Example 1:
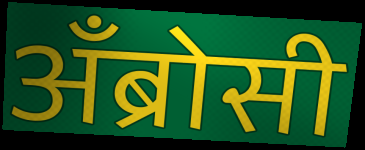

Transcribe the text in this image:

अँब्रोसी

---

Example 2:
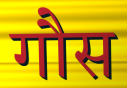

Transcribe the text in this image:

गौस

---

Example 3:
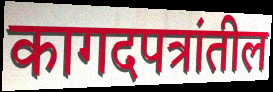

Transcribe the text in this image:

कागदपत्रांतील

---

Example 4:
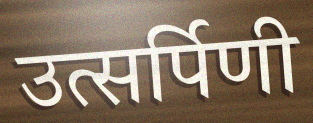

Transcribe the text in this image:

उत्सर्पिणी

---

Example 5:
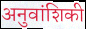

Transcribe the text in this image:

अनुवांशिकी